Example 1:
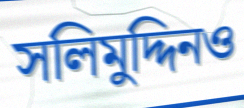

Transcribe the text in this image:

সলিমুদ্দিনও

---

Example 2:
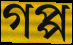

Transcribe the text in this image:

গপ্প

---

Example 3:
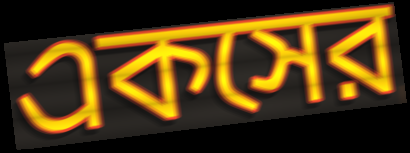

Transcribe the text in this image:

একসের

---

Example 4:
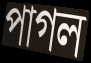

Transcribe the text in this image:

পাগল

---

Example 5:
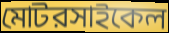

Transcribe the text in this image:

মোটরসাইকেল